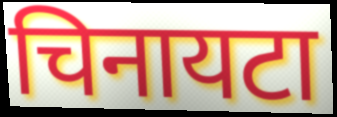
चिनायटा